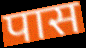
पास